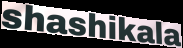
shashikala